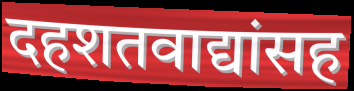
दहशतवाद्यांसह